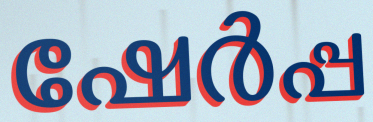
ഷേർപ്പ